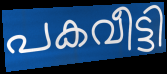
പകവീട്ടി